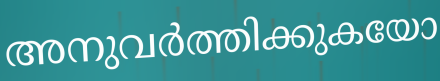
അനുവർത്തിക്കുകയോ